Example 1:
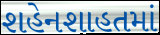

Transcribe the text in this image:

શહેનશાહતમાં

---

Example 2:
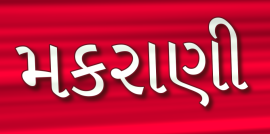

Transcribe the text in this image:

મકરાણી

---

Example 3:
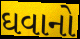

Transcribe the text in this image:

ઘવાનો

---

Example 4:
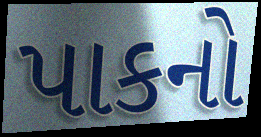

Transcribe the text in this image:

પાકનો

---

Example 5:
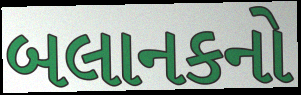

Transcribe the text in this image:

બલાનકનો